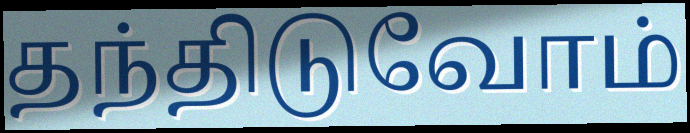
தந்திடுவோம்